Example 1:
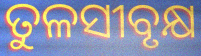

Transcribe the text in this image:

ତୁଳସୀବୃକ୍ଷ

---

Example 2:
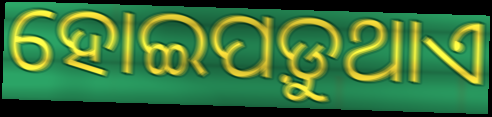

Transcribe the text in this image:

ହୋଇପଡ଼ୁଥାଏ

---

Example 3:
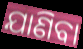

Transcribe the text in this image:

ଯାଣିବା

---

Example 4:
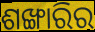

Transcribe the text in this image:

ଶଙ୍ଖାରିର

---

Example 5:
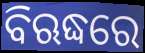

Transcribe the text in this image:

ବିଋଦ୍ଧରେ